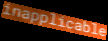
inapplicable